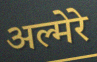
अल्मेरे